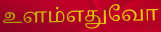
உளம்எதுவோ